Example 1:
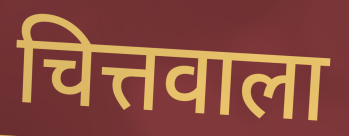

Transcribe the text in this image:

चित्तवाला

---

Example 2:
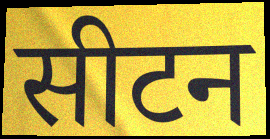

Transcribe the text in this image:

सीटन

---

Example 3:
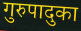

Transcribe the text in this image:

गुरुपादुका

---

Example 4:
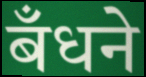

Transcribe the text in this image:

बँधने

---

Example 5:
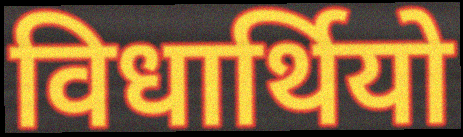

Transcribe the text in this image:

विधार्थियो